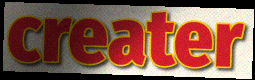
creater